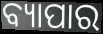
ବ୍ୟାପାର